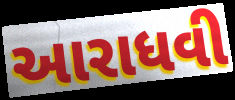
આરાધવી